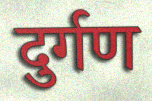
दुर्गण